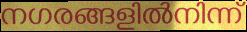
നഗരങ്ങളിൽനിന്ന്